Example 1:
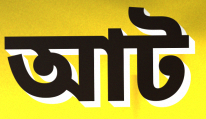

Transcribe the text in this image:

আট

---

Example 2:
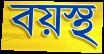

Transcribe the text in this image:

বয়স্থ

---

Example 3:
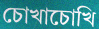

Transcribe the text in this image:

চোখাচোখি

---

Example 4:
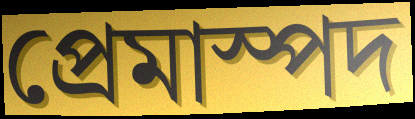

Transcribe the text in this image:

প্রেমাস্পদ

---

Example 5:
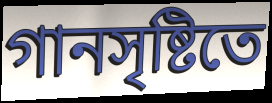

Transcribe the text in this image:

গানসৃষ্টিতে